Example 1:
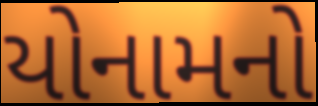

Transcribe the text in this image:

યોનામનો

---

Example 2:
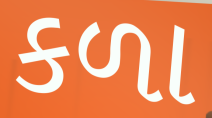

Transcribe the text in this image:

કળા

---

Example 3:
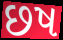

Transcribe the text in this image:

છષ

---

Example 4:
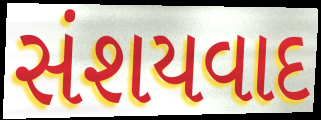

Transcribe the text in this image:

સંશયવાદ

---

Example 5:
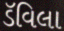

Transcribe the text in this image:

ડૅવિલા